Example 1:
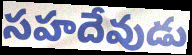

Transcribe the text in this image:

సహదేవుడు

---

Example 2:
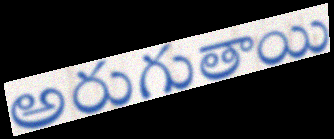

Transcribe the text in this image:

అరుగుతాయి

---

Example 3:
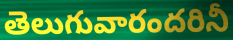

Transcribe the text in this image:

తెలుగువారందరినీ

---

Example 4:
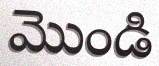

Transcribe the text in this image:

మొండి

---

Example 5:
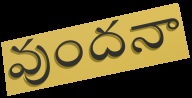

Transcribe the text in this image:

వుందనా